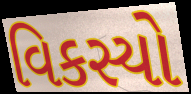
વિકસ્યો